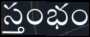
స్తంభం